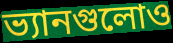
ভ্যানগুলোও